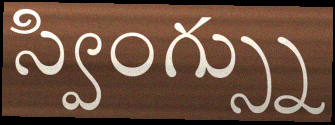
స్వింగ్స్ను